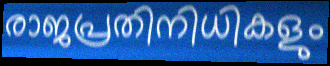
രാജപ്രതിനിധികളും